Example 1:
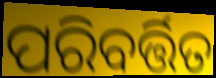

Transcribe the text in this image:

ପରିବର୍ତ୍ତିତ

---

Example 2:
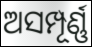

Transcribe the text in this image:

ଅସମ୍ପୂର୍ଣ୍ଣ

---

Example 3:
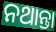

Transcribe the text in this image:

ନଥାନ୍ତା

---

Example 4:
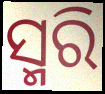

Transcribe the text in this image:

ସ୍ମରି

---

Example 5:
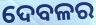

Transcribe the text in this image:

ଦେବଳର